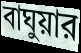
বাঘুয়ার